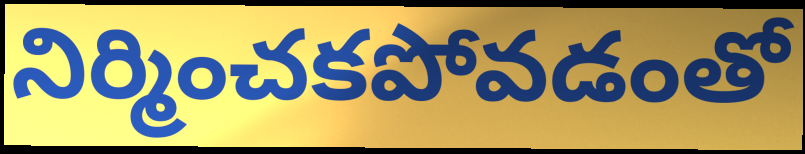
నిర్మించకపోవడంతో